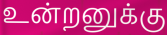
உன்றனுக்கு